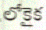
లోకైక